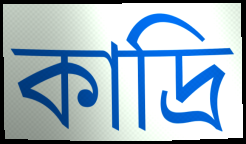
কাদ্রি